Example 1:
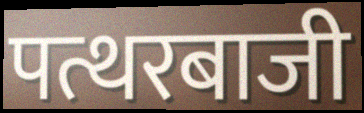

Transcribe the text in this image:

पत्थरबाजी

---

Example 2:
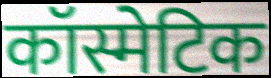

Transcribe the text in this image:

कॉस्मेटिक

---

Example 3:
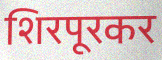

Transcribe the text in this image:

शिरपूरकर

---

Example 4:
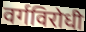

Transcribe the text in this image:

वर्गविरोधी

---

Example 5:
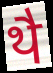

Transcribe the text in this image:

थै